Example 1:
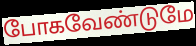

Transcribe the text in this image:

போகவேண்டுமே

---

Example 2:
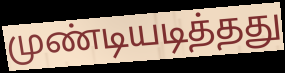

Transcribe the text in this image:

முண்டியடித்தது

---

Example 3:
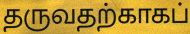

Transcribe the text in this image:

தருவதற்காகப்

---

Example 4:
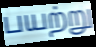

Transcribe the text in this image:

பயற்று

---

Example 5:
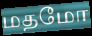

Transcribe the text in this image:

மதமோ